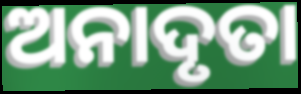
ଅନାଦୃତା